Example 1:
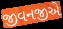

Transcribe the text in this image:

જીવનજીએ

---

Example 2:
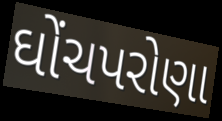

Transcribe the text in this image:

ઘોંચપરોણા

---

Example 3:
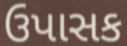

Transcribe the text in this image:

ઉપાસક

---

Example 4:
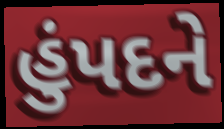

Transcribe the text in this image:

હુંપદને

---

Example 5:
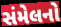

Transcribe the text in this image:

સંમેલનો